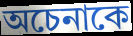
অচেনাকে